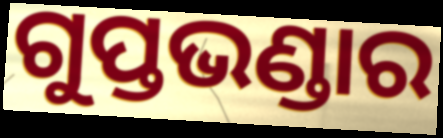
ଗୁପ୍ତଭଣ୍ଡାର